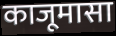
काजूमासा